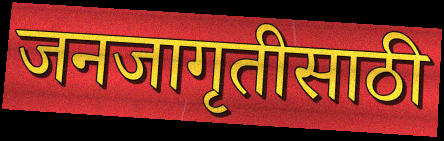
जनजागृतीसाठी